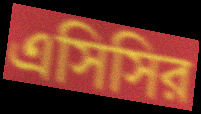
এসিসির